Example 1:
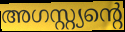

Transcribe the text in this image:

അഗസ്റ്റ്യന്റെ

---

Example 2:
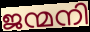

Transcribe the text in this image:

ജന്മനി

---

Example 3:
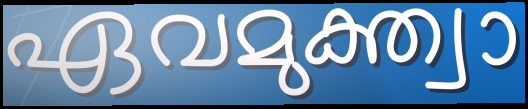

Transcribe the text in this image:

ഏവമുക്ത്വാ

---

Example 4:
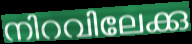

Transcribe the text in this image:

നിറവിലേക്കു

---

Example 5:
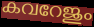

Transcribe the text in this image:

കവറേജും